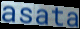
asata